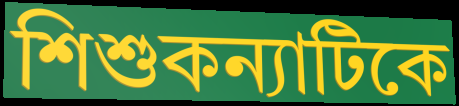
শিশুকন্যাটিকে